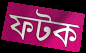
ফটক